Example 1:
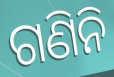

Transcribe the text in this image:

ଗଣିନି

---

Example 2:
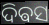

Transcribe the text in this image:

ଦିଵସ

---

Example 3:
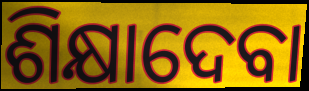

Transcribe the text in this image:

ଶିକ୍ଷାଦେବା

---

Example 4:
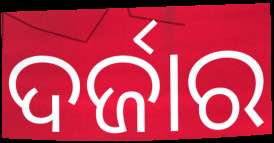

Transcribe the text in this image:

ଦର୍ଜାର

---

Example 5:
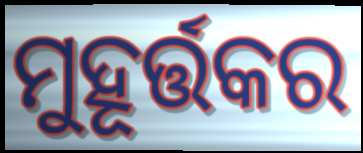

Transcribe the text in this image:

ମୁହୂର୍ତ୍ତକର